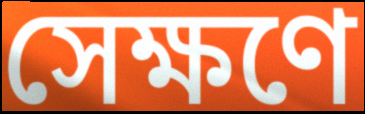
সেক্ষণে